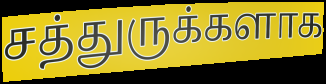
சத்துருக்களாக